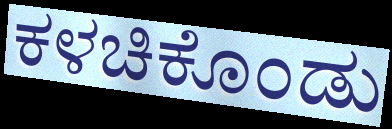
ಕಳಚಿಕೊಂಡು